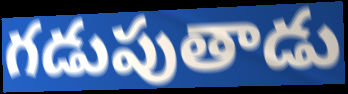
గడుపుతాడు